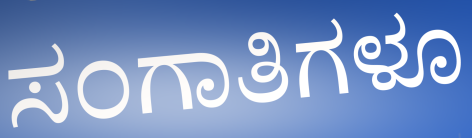
ಸಂಗಾತಿಗಳೂ